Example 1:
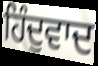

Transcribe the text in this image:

ਹਿੰਦੁਵਾਦ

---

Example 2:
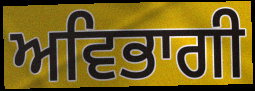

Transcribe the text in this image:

ਅਵਿਭਾਗੀ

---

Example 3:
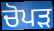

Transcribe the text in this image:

ਚੋਪੜ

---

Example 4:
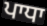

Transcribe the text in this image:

ਪਾਧਾ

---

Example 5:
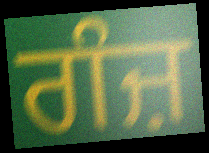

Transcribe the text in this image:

ਗੰਜ਼